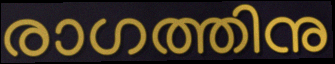
രാഗത്തിനു